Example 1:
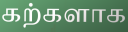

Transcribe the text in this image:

கற்களாக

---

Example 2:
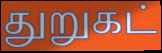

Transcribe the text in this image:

துறுகட்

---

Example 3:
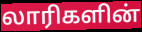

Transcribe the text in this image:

லாரிகளின்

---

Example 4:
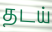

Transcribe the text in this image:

தடய்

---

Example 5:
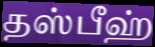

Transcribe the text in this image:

தஸ்பீஹ்